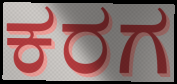
ಕರಗ